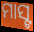
ମାସ୍ଟ